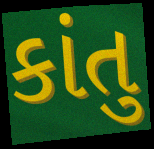
કાંતુ